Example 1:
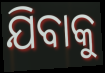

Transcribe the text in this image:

ଯିବାକୁ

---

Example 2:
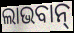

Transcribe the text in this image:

ଲାଭବାନ୍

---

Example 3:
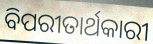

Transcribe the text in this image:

ବିପରୀତାର୍ଥକାରୀ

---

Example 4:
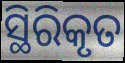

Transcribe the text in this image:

ସ୍ଥିରିକୃତ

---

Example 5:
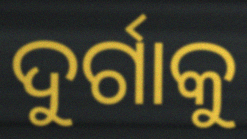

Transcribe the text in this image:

ଦୁର୍ଗାକୁ